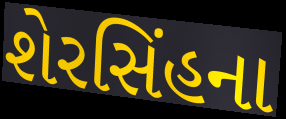
શેરસિંહના